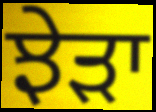
ਝੇੜਾ